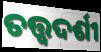
ତତ୍ତ୍ଵଦର୍ଶୀ